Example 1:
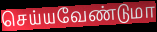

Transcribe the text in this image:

செய்யவேண்டுமா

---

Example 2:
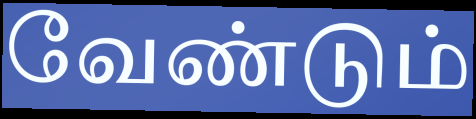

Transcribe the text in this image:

வேண்டும்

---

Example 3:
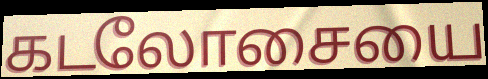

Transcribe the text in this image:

கடலோசையை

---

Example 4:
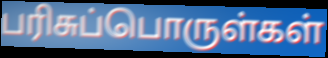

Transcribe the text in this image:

பரிசுப்பொருள்கள்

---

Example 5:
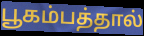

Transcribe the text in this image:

பூகம்பத்தால்